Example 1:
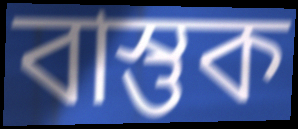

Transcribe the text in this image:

বাস্তুক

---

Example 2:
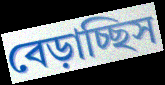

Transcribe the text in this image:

বেড়াচ্ছিস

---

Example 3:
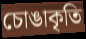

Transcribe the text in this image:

চোঙাকৃতি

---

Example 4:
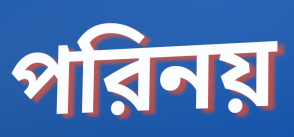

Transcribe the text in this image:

পরিনয়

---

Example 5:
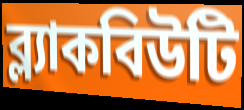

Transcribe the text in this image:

ব্ল্যাকবিউটি